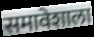
समावेशाला